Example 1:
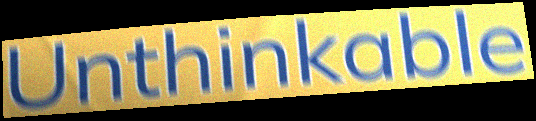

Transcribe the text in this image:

Unthinkable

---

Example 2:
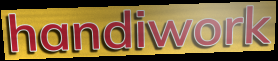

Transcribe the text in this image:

handiwork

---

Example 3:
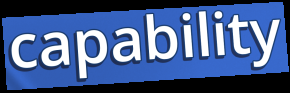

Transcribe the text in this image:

capability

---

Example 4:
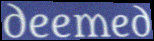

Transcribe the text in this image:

deemed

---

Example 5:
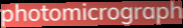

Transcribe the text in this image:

photomicrograph